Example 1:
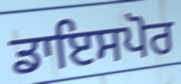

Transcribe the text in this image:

ਡਾਇਸਪੋਰ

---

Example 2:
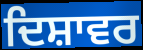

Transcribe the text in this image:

ਦਿਸ਼ਾਵਰ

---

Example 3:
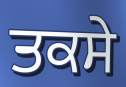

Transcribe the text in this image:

ਤਕਸੇ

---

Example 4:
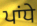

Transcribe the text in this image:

ਪਾਂਧੇ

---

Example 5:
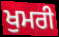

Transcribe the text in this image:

ਖੁਮਰੀ